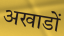
अखाडों